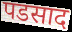
पडसाद